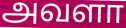
அவளா